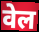
वेल